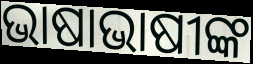
ଭାଷାଭାଷୀଙ୍କ